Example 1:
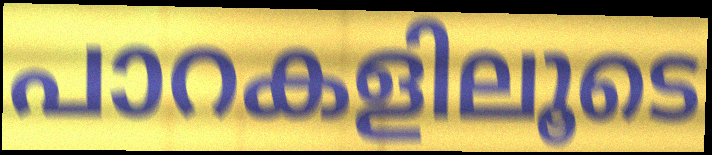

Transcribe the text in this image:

പാറകളിലൂടെ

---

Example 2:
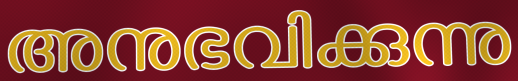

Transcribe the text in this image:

അനുഭവിക്കുന്നു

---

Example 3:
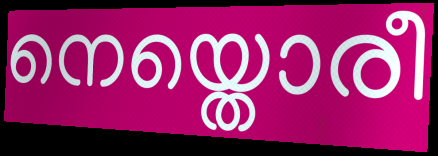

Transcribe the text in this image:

നെയ്തൊരീ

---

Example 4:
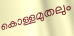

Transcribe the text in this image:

കൊള്ളമുതലും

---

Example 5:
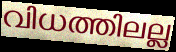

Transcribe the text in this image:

വിധത്തിലല്ല